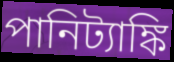
পানিট্যাঙ্কি